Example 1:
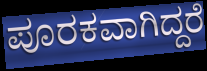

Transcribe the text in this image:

ಪೂರಕವಾಗಿದ್ದರೆ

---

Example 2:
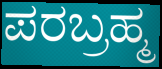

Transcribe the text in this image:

ಪರಬ್ರಹ್ಮ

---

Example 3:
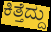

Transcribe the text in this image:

ಕಿತ್ತೆದ್ದು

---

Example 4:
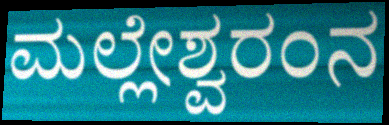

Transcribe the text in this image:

ಮಲ್ಲೇಶ್ವರಂನ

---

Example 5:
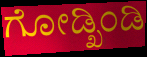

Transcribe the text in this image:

ಗೋಡ್ಖಿಂಡಿ